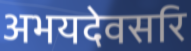
अभयदेवसरि